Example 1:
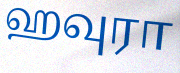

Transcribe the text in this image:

ஹவுரா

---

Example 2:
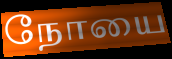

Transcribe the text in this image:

நோயை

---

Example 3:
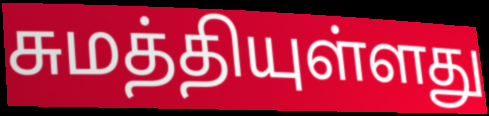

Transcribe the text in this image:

சுமத்தியுள்ளது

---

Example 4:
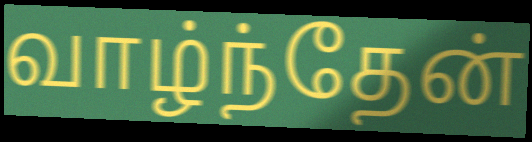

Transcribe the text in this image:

வாழ்ந்தேன்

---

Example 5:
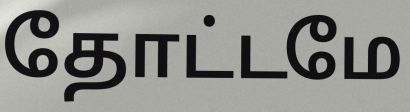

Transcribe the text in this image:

தோட்டமே